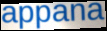
appana